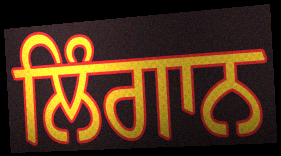
ਲਿੰਗਾਨ